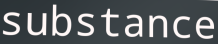
substance